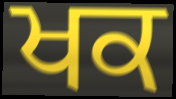
ਖਕ